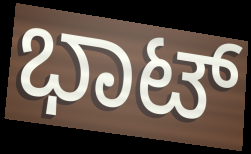
ಭಾಟ್